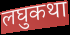
लघुकथा